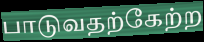
பாடுவதற்கேற்ற